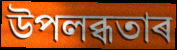
উপলব্ধতাৰ